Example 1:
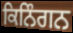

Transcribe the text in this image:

ਕਿਨਿੰਗਨ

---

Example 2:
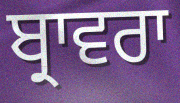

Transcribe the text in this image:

ਬ੍ਰਾਵਰਾ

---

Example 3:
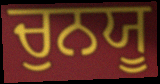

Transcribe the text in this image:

ਚੁਨਯੂ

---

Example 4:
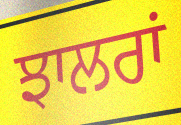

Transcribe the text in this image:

ਝਾਲਰਾਂ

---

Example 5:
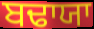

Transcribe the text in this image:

ਬਢਾਯਾ